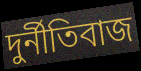
দুর্নীতিবাজ